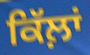
ਕਿੱਲ਼ਾਂ